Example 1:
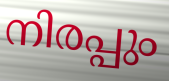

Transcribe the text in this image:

നിരപ്പും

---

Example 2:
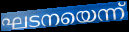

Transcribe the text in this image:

ഘടനയെന്ന്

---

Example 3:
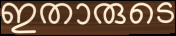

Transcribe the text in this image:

ഇതാരുടെ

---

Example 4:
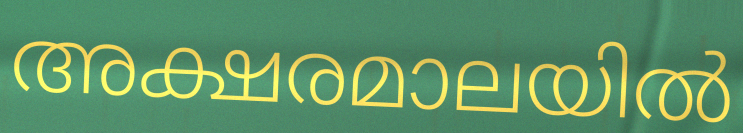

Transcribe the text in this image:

അക്ഷരമാലയിൽ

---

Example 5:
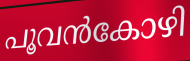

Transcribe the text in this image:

പൂവൻകോഴി